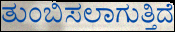
ತುಂಬಿಸಲಾಗುತ್ತಿದೆ